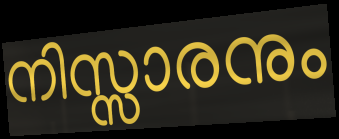
നിസ്സാരനും